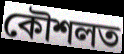
কৌশলত